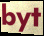
byt